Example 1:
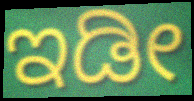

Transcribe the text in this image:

ಇಡೀ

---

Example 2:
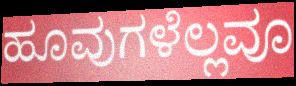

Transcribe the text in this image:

ಹೂವುಗಳೆಲ್ಲವೂ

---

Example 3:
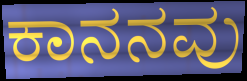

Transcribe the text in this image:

ಕಾನನವು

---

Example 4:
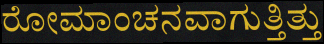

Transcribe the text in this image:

ರೋಮಾಂಚನವಾಗುತ್ತಿತ್ತು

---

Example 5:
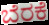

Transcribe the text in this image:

ಬೆರಕೆ